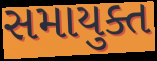
સમાયુક્ત